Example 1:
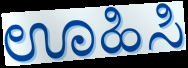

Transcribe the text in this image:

ಊಹಿಸಿ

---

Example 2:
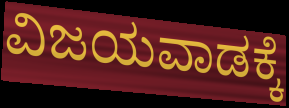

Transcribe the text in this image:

ವಿಜಯವಾಡಕ್ಕೆ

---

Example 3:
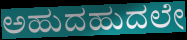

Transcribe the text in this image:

ಅಹುದಹುದಲೇ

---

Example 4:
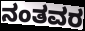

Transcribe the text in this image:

ನಂತವರ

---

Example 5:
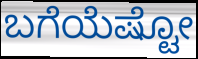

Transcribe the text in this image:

ಬಗೆಯೆಷ್ಟೋ